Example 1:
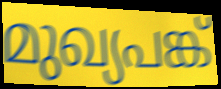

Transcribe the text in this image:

മുഖ്യപങ്ക്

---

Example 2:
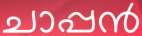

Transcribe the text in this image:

ചാപ്പൻ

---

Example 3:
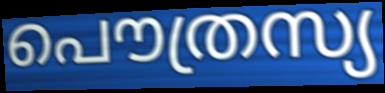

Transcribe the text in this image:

പൌത്രസ്യ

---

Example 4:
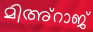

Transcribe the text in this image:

മിഅ്റാജ്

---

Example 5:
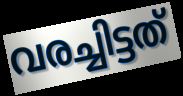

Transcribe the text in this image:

വരച്ചിട്ടത്